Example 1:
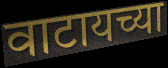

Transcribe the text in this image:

वाटायच्या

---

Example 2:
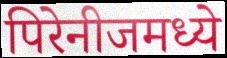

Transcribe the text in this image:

पिरेनीजमध्ये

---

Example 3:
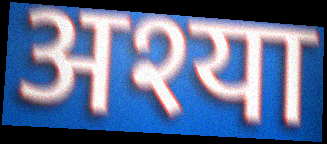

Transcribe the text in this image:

अश्या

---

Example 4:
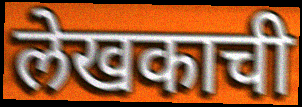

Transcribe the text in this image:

लेखकाची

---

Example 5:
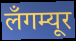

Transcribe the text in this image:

लँगम्यूर